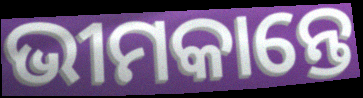
ଭୀମକାନ୍ତେ